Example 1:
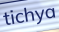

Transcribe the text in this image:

tichya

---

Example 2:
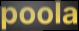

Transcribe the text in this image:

poola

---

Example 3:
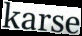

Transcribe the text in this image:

karse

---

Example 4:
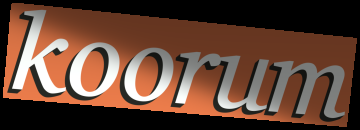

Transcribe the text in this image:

koorum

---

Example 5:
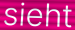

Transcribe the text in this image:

sieht